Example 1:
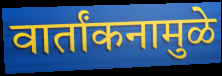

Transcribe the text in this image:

वार्तांकनामुळे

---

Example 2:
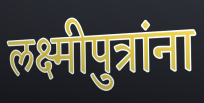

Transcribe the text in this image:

लक्ष्मीपुत्रांना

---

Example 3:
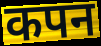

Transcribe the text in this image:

कपन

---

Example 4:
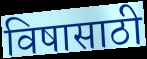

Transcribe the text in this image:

विषासाठी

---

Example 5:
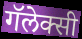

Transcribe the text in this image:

गॅलेक्सी